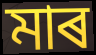
মাৰ